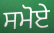
ਸਮੋਏ